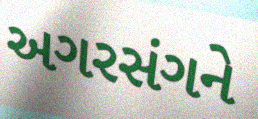
અગરસંગને